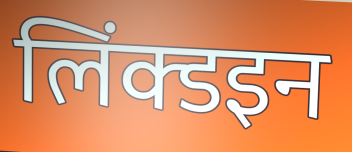
लिंक्‍डइन